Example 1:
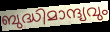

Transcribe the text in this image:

ബുദ്ധിമാന്ദ്യവും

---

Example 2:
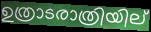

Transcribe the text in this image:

ഉത്രാടരാത്രിയില്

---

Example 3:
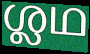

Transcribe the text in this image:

ശ്ലഥ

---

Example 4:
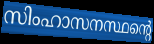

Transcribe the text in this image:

സിംഹാസനസ്ഥന്റെ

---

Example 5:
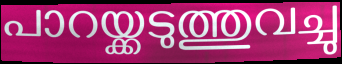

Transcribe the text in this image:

പാറയ്ക്കടുത്തുവച്ചു